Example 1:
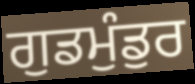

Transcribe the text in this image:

ਗੁਡਮੁੰਡੁਰ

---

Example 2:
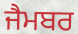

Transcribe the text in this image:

ਜੈਮਬਰ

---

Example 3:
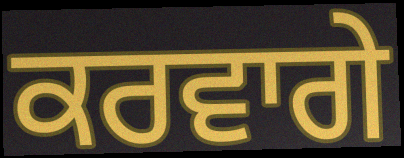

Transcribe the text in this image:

ਕਰਵਾਗੇ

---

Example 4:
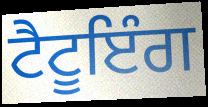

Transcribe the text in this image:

ਟੈਟੂਇੰਗ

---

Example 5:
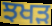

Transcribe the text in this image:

ਝਖੜ